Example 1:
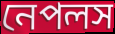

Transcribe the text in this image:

নেপলস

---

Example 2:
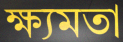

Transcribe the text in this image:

ক্ষ্যমতা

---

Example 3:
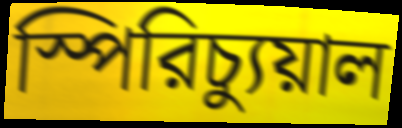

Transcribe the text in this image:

স্পিরিচ্যুয়াল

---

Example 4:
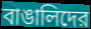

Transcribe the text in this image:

বাঙালিদের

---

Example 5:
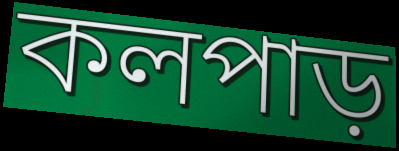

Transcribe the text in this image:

কলপাড়